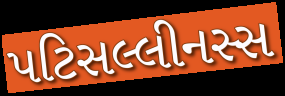
પટિસલ્લીનસ્સ